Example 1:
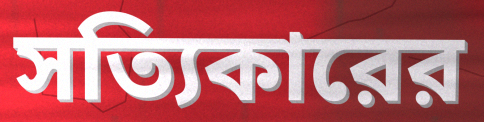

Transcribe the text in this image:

সত্যিকারের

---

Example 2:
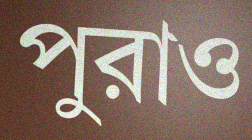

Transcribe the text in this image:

পুরাও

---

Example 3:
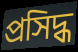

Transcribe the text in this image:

প্রসিদ্ধ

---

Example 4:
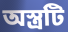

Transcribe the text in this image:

অস্ত্রটি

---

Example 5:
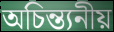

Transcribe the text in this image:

অচিন্ত্যনীয়